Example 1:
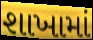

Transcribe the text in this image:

શાખામાં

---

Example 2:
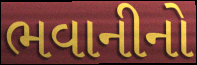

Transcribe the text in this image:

ભવાનીનો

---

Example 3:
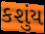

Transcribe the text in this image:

કશુંય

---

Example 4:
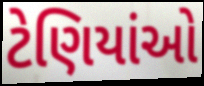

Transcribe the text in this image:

ટેણિયાંઓ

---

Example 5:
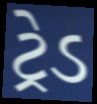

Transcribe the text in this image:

ટ્રેડ